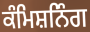
ਕੰਮਿਸ਼ਨਿੰਗ